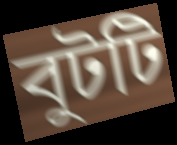
বুটটি